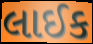
લાઈક